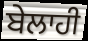
ਬੇਲਾਹੀ